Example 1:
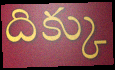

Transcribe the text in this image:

దిక్కు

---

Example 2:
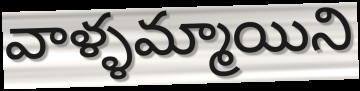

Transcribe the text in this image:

వాళ్ళమ్మాయిని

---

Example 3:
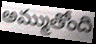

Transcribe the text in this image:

అమ్ముతోంది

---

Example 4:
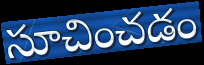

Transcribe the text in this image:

సూచించడం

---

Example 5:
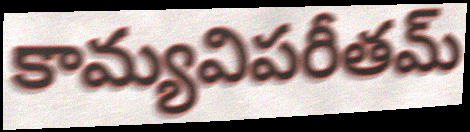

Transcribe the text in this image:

కామ్యవిపరీతమ్